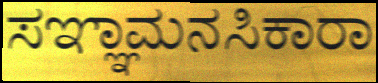
ಸಞ್ಞಾಮನಸಿಕಾರಾ